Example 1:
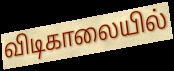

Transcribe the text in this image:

விடிகாலையில்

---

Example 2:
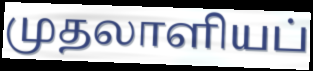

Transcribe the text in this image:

முதலாளியப்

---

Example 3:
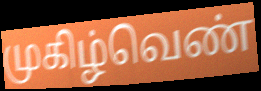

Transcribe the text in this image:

முகிழ்வெண்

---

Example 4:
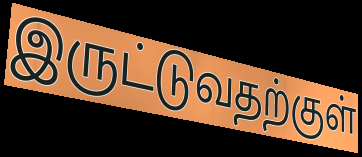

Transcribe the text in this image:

இருட்டுவதற்குள்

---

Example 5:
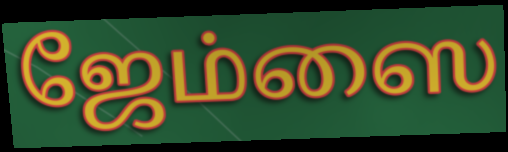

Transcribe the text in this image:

ஜேம்ஸை